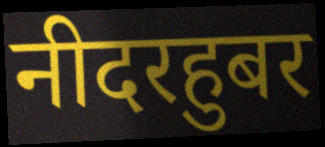
नीदरहुबर